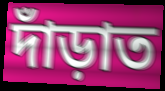
দাঁড়াত